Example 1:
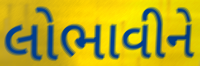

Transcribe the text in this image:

લોભાવીને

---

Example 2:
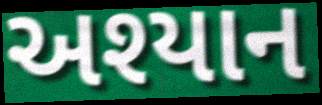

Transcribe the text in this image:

અશ્યાન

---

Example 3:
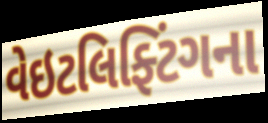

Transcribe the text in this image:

વેઇટલિફ્ટિંગના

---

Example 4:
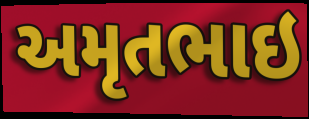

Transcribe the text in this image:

અમૃતભાઇ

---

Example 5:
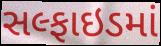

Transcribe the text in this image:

સલ્ફાઇડમાં